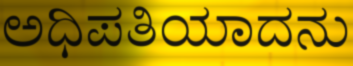
ಅಧಿಪತಿಯಾದನು